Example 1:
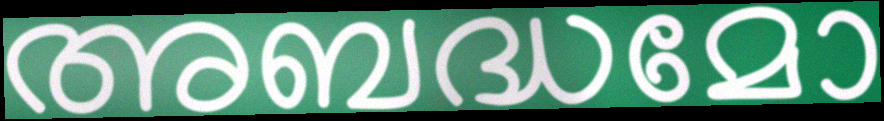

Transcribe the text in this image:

അബദ്ധമോ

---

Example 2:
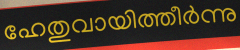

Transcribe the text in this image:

ഹേതുവായിത്തീർന്നു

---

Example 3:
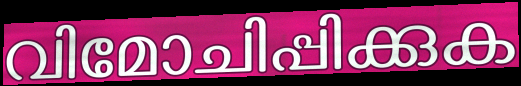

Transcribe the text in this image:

വിമോചിപ്പിക്കുക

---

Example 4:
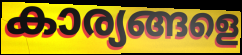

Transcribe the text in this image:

കാര്യങ്ങളെ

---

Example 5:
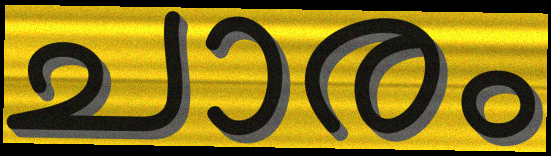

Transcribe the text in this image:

ചാരം